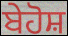
ਬੇਹੋਸ਼